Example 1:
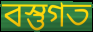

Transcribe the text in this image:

বস্তুগত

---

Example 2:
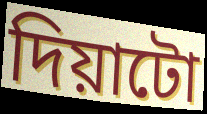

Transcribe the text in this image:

দিয়াটো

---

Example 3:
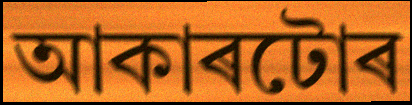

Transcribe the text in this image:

আকাৰটোৰ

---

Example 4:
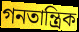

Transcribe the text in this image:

গনতান্ত্ৰিক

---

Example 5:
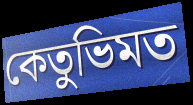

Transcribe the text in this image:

কেতুভিমত